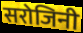
सरोजिनी